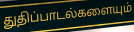
துதிப்பாடல்களையும்